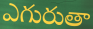
ఎగురుతా